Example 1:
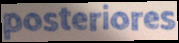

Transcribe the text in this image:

posteriores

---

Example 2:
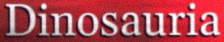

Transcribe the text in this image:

Dinosauria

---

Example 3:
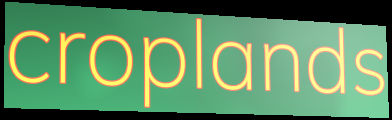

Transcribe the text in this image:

croplands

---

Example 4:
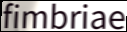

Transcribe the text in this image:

fimbriae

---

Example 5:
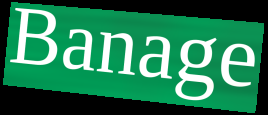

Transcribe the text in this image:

Banage